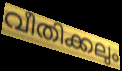
വീതിക്കലും